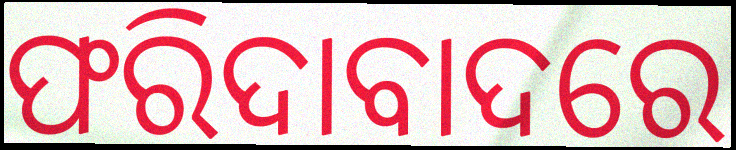
ଫରିଦାବାଦରେ